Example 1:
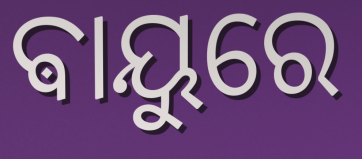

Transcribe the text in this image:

ଵାୟୁରେ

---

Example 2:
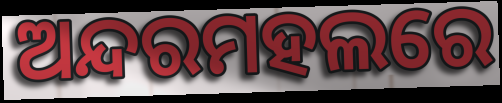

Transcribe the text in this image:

ଅନ୍ଦରମହଲରେ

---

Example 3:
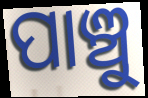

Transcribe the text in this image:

ପାଞ୍ଚୁ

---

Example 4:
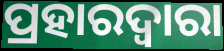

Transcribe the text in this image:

ପ୍ରହାରଦ୍ଵାରା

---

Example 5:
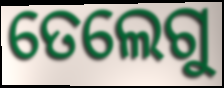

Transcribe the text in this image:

ତେଲେଗୁ